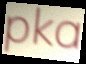
pka